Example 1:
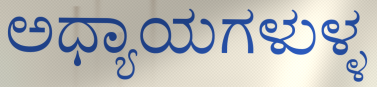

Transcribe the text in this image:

ಅಧ್ಯಾಯಗಳುಳ್ಳ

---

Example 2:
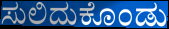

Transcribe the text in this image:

ಸುಲಿದುಕೊಂಡು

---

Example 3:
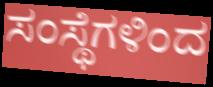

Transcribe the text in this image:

ಸಂಸ್ಥೆಗಳಿಂದ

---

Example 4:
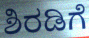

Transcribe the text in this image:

ಶಿರಡಿಗೆ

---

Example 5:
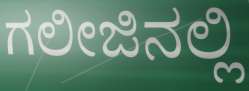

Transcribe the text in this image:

ಗಲೀಜಿನಲ್ಲಿ